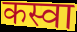
कस्वा